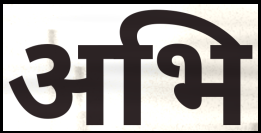
अभि